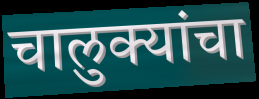
चालुक्यांचा